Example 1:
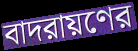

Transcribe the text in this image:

বাদরায়ণের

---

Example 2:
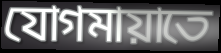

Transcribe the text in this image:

যোগমায়াতে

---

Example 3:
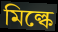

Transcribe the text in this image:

মিল্কে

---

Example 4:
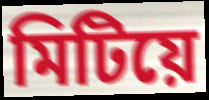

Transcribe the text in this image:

মিটিয়ে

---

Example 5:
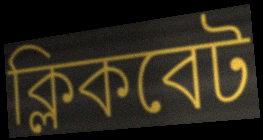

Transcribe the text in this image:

ক্লিকবেট